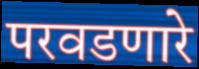
परवडणारे